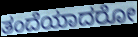
ತಂದೆಯಾದರೋ